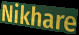
Nikhare